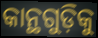
କାନ୍ଥଗୁଡ଼ିକୁ